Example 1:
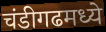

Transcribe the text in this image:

चंडीगढमध्ये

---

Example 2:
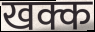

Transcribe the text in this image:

खक्क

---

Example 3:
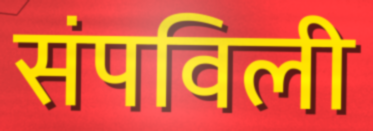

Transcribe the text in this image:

संपविली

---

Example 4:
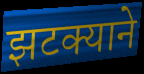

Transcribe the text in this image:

झटक्याने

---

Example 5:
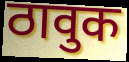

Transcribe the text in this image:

ठावुक